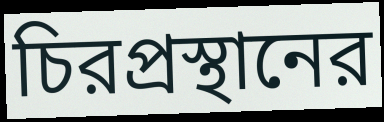
চিরপ্রস্থানের